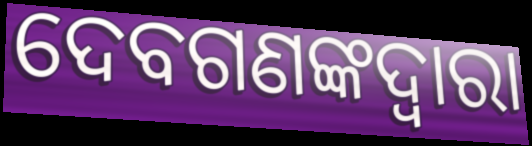
ଦେବଗଣଙ୍କଦ୍ୱାରା